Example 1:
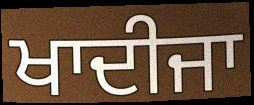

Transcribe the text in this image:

ਖਾਦੀਜਾ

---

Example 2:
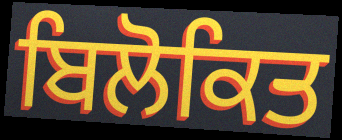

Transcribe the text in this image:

ਬਿਲੋਕਿਤ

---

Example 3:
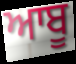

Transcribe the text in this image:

ਆਬੂ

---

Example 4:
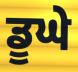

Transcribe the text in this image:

ਡੂਘੇ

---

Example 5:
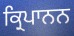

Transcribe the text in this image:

ਕ੍ਰਿਪਾਨਨ